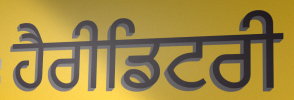
ਹੈਰੀਡਿਟਰੀ